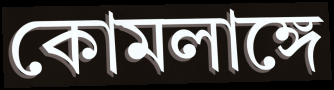
কোমলাঙ্গে